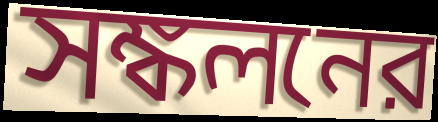
সঙ্কলনের